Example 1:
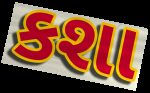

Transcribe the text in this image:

કશા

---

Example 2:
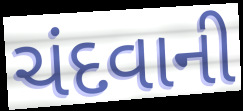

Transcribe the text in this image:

ચંદવાની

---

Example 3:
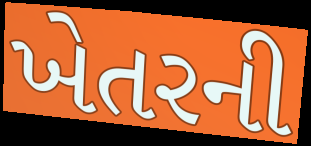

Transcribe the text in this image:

ખેતરની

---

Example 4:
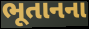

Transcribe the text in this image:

ભૂતાનના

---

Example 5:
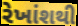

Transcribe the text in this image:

રેખાંશથી